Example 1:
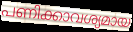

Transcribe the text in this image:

പണിക്കാവശ്യമായ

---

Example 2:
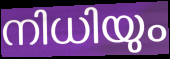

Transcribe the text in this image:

നിധിയും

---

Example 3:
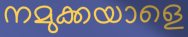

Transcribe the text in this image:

നമുക്കയാളെ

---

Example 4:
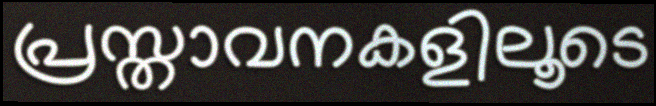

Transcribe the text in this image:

പ്രസ്താവനകളിലൂടെ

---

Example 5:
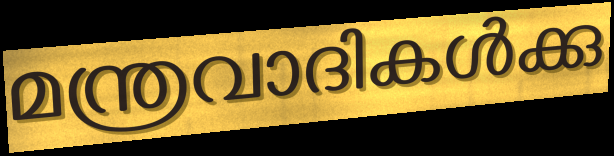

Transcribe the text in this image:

മന്ത്രവാദികൾക്കു